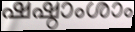
ഷഷ്ഠാംശാം